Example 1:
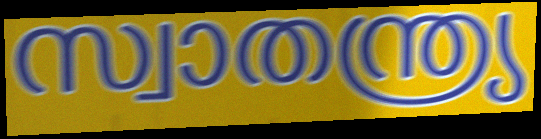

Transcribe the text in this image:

സ്വാതന്ത്ര്യ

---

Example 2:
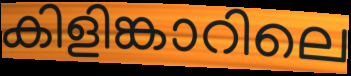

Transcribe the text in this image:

കിളിങ്കാറിലെ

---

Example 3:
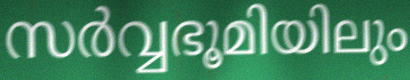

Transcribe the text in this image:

സർവ്വഭൂമിയിലും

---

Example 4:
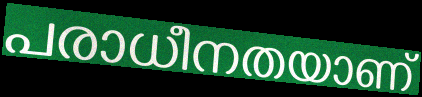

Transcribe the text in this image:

പരാധീനതയാണ്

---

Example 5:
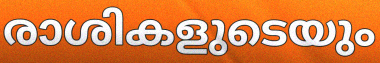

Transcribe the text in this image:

രാശികളുടെയും